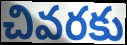
చివరకు